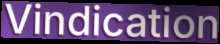
Vindication